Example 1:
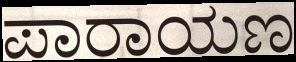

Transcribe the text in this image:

ಪಾರಾಯಣ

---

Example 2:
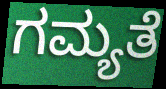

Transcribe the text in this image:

ಗಮ್ಯತೆ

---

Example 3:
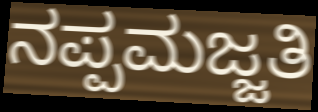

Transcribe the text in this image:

ನಪ್ಪಮಜ್ಜತಿ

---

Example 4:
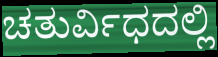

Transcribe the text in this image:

ಚತುರ್ವಿಧದಲ್ಲಿ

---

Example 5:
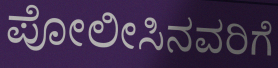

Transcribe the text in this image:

ಪೋಲೀಸಿನವರಿಗೆ